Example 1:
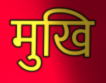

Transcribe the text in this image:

मुखि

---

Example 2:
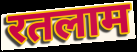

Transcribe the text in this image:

रतलाम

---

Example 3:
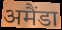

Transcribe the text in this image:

अमैंडा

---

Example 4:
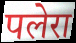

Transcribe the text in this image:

पलेरा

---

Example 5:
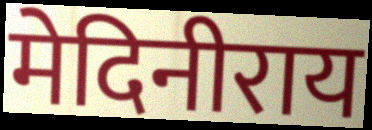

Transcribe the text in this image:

मेदिनीराय